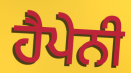
ਹੈਪੇਨੀ